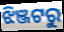
ଝିଞ୍ଜଟରୁ